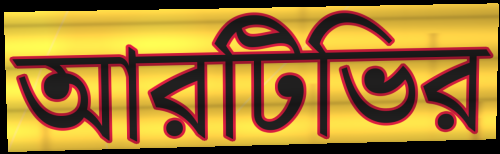
আরটিভির